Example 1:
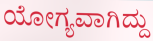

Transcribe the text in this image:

ಯೋಗ್ಯವಾಗಿದ್ದು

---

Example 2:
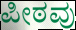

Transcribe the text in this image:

ಪೀಠವು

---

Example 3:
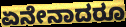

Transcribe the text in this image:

ಏನೇನಾದರೂ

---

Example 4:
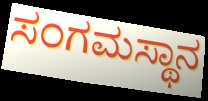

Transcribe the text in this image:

ಸಂಗಮಸ್ಥಾನ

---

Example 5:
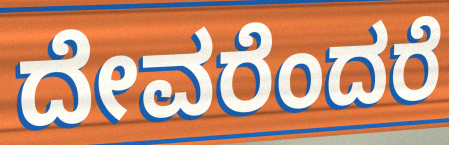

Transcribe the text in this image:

ದೇವರೆಂದರೆ